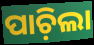
ପାଚ଼ିଲା